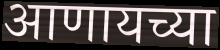
आणायच्या